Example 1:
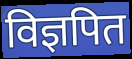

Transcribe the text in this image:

विज्ञपित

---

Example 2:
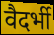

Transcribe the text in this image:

वैदर्भी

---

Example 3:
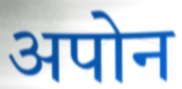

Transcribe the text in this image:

अपोन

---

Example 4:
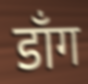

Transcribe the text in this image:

डाँग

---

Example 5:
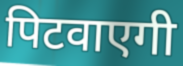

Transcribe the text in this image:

पिटवाएगी